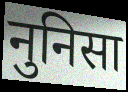
नुनिसा